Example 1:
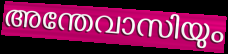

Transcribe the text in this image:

അന്തേവാസിയും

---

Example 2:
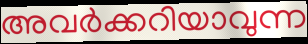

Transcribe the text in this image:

അവർക്കറിയാവുന്ന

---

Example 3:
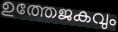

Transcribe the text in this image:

ഉത്തേജകവും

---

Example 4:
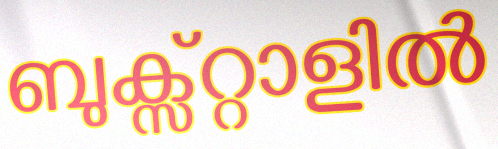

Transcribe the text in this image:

ബുക്സ്റ്റാളിൽ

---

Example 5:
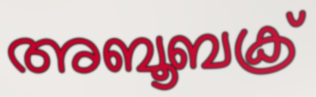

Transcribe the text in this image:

അബൂബക്ര്